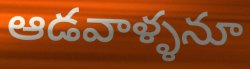
ఆడవాళ్ళనూ